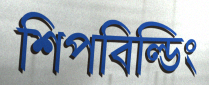
শিপবিল্ডিং